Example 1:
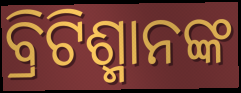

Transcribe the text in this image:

ବ୍ରିଟିଶ୍ମାନଙ୍କ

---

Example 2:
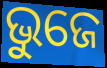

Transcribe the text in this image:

ଭୁଜେ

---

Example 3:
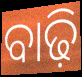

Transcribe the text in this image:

ବାଢ଼ି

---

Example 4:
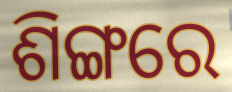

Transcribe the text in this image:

ଶିଙ୍ଗରେ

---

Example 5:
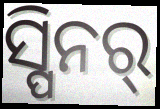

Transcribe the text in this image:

ସ୍ପିନର୍